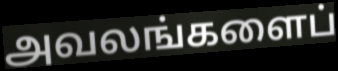
அவலங்களைப்